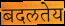
बदलतेय